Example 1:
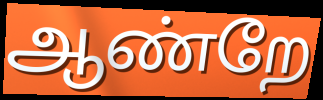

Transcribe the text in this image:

ஆண்றே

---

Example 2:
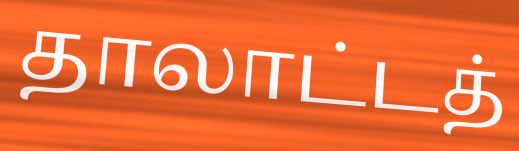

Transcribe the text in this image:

தாலாட்டத்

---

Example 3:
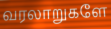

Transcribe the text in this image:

வரலாறுகளே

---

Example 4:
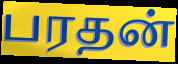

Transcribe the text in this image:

பரதன்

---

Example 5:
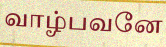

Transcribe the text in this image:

வாழ்பவனே